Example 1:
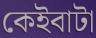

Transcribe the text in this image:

কেইবাটা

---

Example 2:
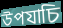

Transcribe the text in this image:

উপযাচি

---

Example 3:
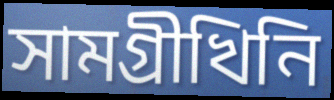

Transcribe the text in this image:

সামগ্ৰীখিনি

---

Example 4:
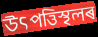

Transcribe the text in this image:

উৎপত্তিস্থলৰ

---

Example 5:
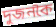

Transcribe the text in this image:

দুজনকৈ